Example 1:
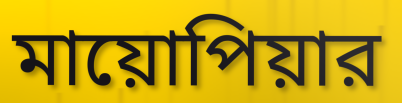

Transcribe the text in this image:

মায়োপিয়ার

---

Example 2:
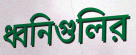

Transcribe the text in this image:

ধ্বনিগুলির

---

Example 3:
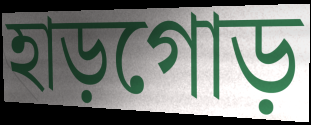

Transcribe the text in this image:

হাড়গোড়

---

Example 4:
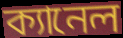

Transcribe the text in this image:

ক্যানেল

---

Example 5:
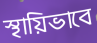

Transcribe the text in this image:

স্থায়িভাবে